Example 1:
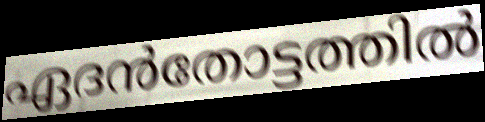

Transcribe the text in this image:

ഏദൻതോട്ടത്തിൽ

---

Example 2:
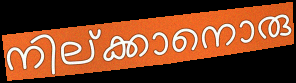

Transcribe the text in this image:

നില്ക്കാനൊരു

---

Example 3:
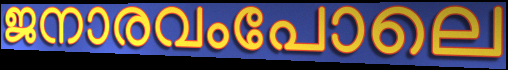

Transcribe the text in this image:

ജനാരവംപോലെ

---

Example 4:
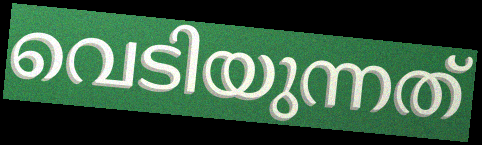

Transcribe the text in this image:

വെടിയുന്നത്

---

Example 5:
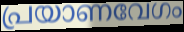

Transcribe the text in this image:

പ്രയാണവേഗം